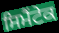
ਸਿਮੈਂਟੇਕ